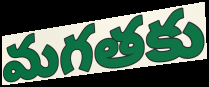
మగతకు